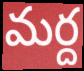
మర్ద